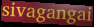
sivagangai